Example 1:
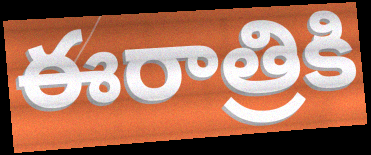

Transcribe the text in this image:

ఈరాత్రికి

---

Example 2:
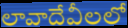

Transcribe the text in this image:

లావాదేవీలలో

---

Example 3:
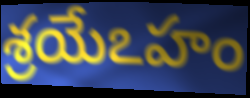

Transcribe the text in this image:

శ్రయేఽహం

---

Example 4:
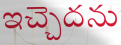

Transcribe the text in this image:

ఇచ్చెదను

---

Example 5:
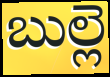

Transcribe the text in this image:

బుల్లె